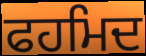
ਫਹਮਿਦ